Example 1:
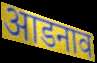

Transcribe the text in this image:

आडनाव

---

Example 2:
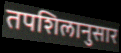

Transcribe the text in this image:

तपशिलानुसार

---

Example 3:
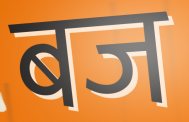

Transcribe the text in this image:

बज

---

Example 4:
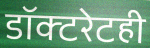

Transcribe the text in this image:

डॉक्‍टरेटही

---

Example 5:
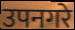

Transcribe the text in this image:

उपनगरे